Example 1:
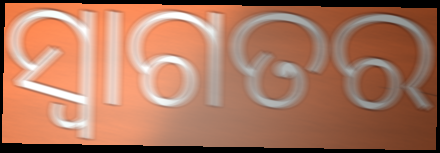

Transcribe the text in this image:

ସ୍ଵାଗତର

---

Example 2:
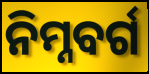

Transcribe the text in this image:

ନିମ୍ନବର୍ଗ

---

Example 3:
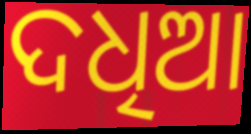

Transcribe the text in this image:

ଦଧିଆ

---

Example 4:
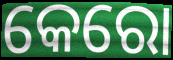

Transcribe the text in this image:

କେରୋ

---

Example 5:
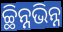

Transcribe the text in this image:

ଚ୍ଛିନ୍ନଭିନ୍ନ